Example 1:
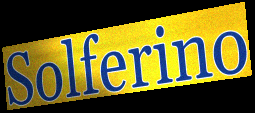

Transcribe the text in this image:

Solferino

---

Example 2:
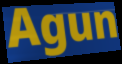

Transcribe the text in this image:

Agun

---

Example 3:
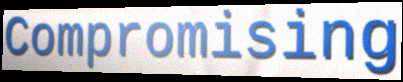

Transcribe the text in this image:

Compromising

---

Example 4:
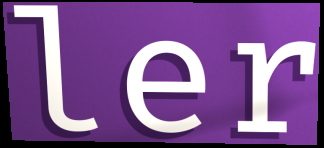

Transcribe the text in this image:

ler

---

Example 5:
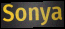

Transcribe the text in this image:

Sonya